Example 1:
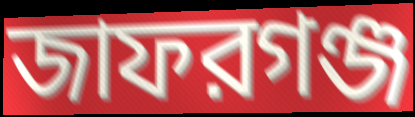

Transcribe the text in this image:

জাফরগঞ্জ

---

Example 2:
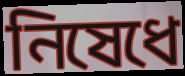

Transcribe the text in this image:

নিষেধে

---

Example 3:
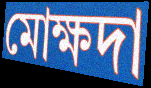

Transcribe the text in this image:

মোক্ষদা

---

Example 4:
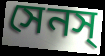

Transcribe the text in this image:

সেনস্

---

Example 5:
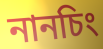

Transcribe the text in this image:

নানচিং